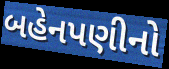
બહેનપણીનો